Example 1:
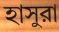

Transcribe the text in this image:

হাসুরা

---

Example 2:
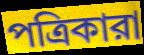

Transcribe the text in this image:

পত্রিকারা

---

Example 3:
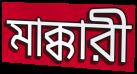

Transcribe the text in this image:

মাক্কারী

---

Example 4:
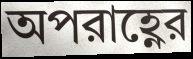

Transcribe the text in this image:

অপরাহ্ণের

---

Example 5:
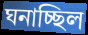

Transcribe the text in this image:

ঘনাচ্ছিল